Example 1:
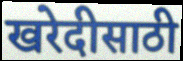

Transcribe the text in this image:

खरेदीसाठी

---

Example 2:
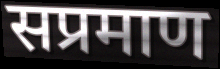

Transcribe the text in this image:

सप्रमाण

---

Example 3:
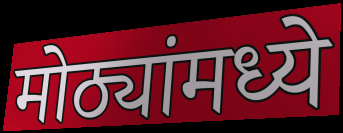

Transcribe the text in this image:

मोठ्यांमध्ये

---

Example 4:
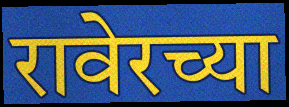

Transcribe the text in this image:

रावेरच्या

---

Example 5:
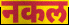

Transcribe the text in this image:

नकल